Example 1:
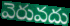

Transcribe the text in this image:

వెరువదు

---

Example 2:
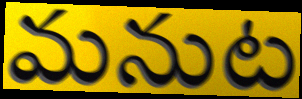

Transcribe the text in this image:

మనుట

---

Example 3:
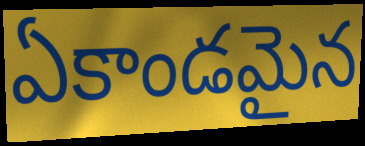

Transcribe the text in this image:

ఏకాండమైన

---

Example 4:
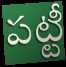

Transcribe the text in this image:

పట్టీ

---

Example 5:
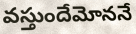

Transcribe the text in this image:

వస్తుందేమోననే